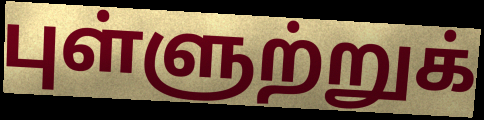
புள்ளுற்றுக்